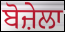
ਬੋਜ਼ੇਲਾ